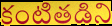
కంటితడిని